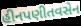
હીનપણીતવસેન